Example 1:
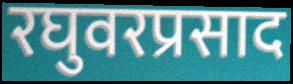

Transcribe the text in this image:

रघुवरप्रसाद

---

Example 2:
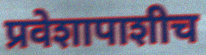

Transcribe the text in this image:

प्रवेशापाशीच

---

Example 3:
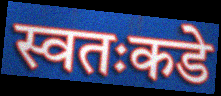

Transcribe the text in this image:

स्वतःकडे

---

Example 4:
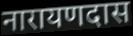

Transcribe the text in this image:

नारायणदास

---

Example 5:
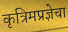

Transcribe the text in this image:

कृत्रिमप्रज्ञेचा